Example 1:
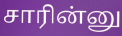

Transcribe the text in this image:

சாரின்னு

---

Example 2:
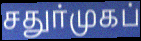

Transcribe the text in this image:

சதுர்முகப்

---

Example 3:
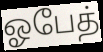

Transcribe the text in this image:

ஓபேத்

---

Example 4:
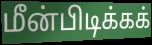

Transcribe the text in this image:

மீன்பிடிக்கக்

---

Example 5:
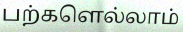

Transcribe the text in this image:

பற்களெல்லாம்